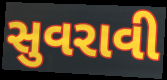
સુવરાવી